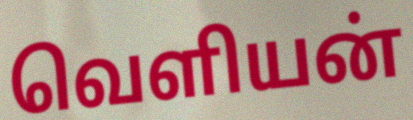
வெளியன்